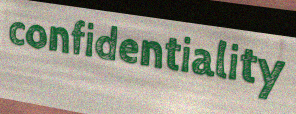
confidentiality